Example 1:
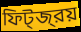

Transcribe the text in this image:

ফিট্‌জ্‌রয়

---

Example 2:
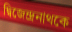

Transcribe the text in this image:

দ্বিজেন্দ্রনাথকে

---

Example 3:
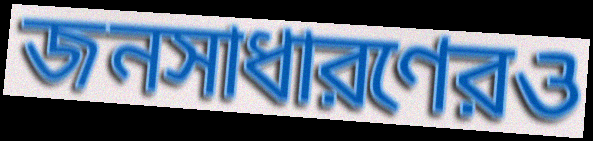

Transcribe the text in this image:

জনসাধারণেরও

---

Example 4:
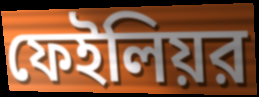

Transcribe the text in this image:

ফেইলিয়র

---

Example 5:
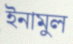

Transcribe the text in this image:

ইনামুল